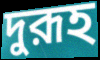
দুরূহ